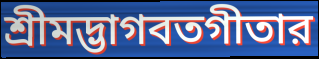
শ্রীমদ্ভাগবতগীতার